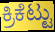
ಕ್ರಿಕೆಟ್ಟು